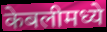
केबलीमध्ये